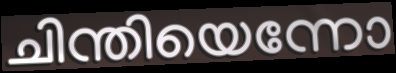
ചിന്തിയെന്നോ